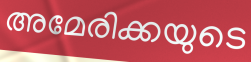
അമേരിക്കയുടെ